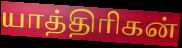
யாத்திரிகன்